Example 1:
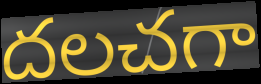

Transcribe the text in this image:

దలచగా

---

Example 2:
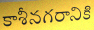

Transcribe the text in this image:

కాశీనగరానికి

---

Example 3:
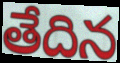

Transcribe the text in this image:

తేదిన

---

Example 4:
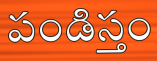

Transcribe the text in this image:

పండిస్తం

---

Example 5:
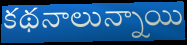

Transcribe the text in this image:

కథనాలున్నాయి